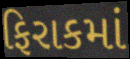
ફિરાકમાં